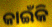
କାଇଁକି